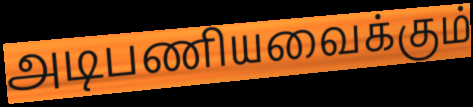
அடிபணியவைக்கும்